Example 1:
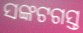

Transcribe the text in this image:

ସଙ୍କଟଗସ୍ତ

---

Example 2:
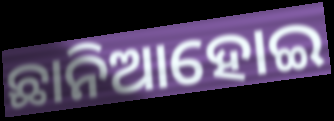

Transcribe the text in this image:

ଛାନିଆହୋଇ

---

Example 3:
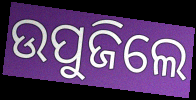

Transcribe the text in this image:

ଉପୁଜିଲେ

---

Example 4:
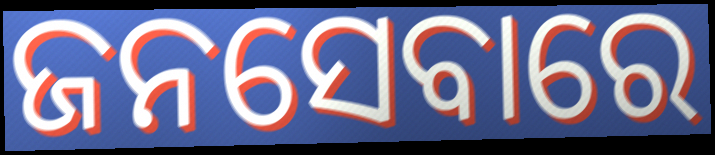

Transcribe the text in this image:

ଜନସେବାରେ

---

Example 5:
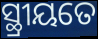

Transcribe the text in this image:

ସ୍ଥ୍ରୀୟତେ